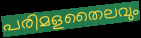
പരിമളതൈലവും